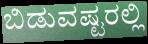
ಬಿಡುವಷ್ಟರಲ್ಲಿ